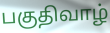
பகுதிவாழ்